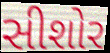
સીશોર